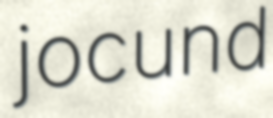
jocund